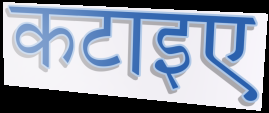
कटाइए